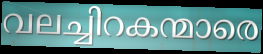
വലച്ചിറകന്മാരെ